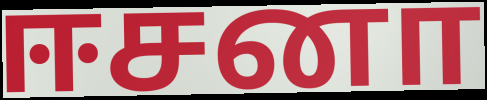
ஈசனா